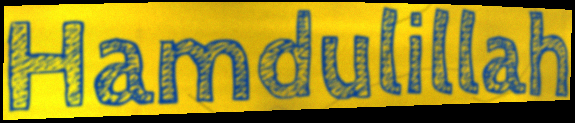
Hamdulillah